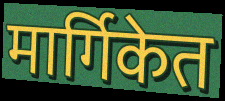
मार्गिकेत